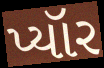
પ્યૉર